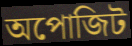
অপোজিট